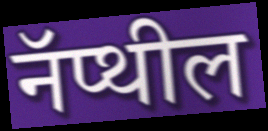
नॅप्थील